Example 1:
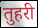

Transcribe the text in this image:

तुहरी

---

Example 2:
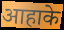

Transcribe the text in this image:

आहाके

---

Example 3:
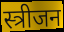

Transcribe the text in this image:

स्त्रीजन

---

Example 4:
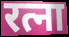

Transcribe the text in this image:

रत्ना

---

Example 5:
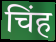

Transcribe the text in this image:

चिंह